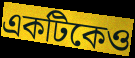
একটিকেও